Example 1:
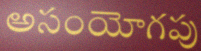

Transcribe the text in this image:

అసంయోగపు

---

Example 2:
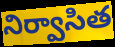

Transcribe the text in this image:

నిర్వాసిత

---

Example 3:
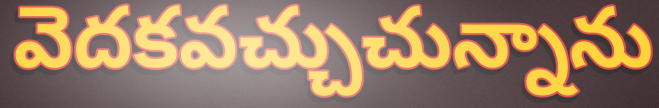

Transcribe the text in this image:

వెదకవచ్చుచున్నాను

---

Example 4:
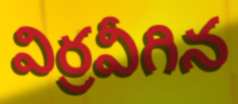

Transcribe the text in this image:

విర్రవీగిన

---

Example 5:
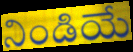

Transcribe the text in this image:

నిండియే